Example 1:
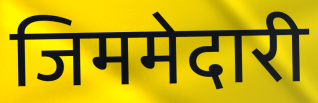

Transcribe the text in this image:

जिममेदारी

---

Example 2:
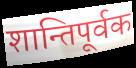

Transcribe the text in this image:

शान्तिपूर्वक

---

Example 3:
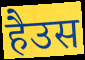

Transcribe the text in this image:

हैउस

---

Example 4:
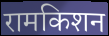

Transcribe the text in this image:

रामकिशन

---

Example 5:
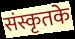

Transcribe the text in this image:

संस्कृतके